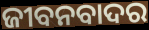
ଜୀବନବାଦର